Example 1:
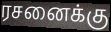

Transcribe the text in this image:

ரசனைக்கு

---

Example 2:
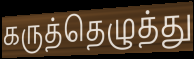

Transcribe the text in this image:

கருத்தெழுத்து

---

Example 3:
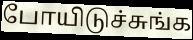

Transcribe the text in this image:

போயிடுச்சுங்க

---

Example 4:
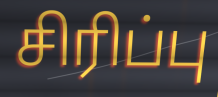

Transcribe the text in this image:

சிரிப்பு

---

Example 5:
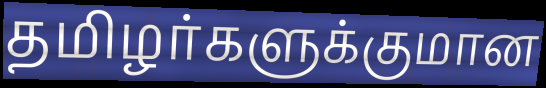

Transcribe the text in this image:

தமிழர்களுக்குமான